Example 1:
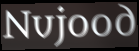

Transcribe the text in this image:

Nujood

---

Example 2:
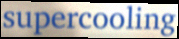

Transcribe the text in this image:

supercooling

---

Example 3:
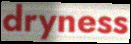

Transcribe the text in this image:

dryness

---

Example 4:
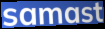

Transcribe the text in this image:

samast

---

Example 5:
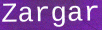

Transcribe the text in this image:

Zargar